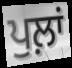
ਪੁਲ਼ਾਂ